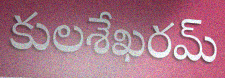
కులశేఖరమ్